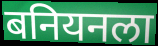
बनियनला